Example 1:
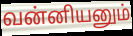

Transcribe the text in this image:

வன்னியனும்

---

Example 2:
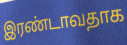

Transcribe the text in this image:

இரண்டாவதாக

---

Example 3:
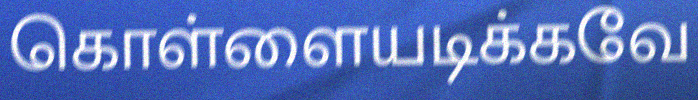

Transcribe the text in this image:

கொள்ளையடிக்கவே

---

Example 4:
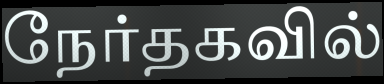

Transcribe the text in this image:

நேர்தகவில்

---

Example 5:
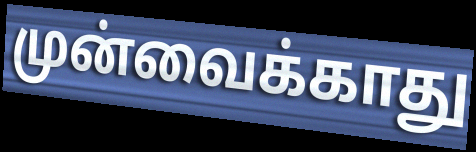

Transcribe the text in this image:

முன்வைக்காது